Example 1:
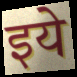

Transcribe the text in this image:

इये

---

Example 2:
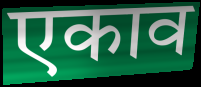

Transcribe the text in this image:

एकाव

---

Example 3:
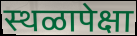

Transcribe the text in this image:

स्थळापेक्षा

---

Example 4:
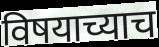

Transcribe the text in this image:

विषयाच्याच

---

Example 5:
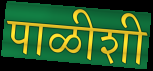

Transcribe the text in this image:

पाळीशी